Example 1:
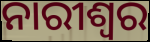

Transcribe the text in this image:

ନାରୀଶ୍ବର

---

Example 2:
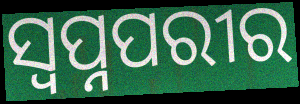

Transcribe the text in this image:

ସ୍ୱପ୍ନପରୀର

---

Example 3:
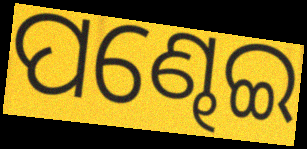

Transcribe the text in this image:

ପଣ୍ଢେଇ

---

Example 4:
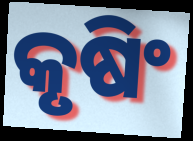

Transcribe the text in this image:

କୃଷିଂ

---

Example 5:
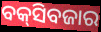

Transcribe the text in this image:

ବକ୍‌ସିବଜାର